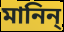
মানিন্